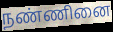
நண்ணினை